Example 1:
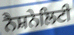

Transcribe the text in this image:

ਨੈਸ਼ਨੇਲਿਟੀ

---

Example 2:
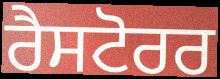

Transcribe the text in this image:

ਰੈਸਟੋਰਰ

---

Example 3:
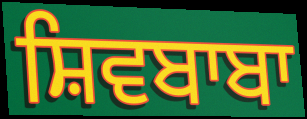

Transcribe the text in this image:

ਸ਼ਿਵਬਾਬਾ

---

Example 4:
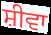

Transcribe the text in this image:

ਸ਼ੀਵਾ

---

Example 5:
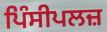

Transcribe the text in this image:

ਪਿੰਸੀਪਲਜ਼